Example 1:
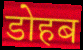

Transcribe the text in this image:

डोहब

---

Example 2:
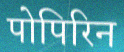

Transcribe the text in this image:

पोपिरिन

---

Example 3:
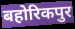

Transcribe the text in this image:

बहोरिकपुर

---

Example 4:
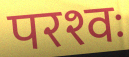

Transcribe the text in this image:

परश्वः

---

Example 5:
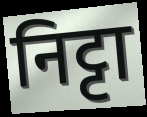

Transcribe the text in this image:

निट्टा